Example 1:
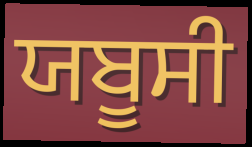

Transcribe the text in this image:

ਯਬੂਸੀ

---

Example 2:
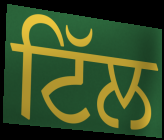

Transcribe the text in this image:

ਟਿੱਲ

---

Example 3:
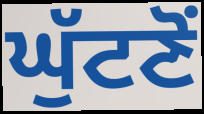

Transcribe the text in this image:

ਘੁੱਟਣੋਂ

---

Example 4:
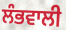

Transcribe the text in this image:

ਲੰਭਵਾਲੀ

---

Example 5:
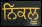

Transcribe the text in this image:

ਨਿੱਕਲੂ